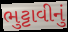
ભુટ્ટાવીનું